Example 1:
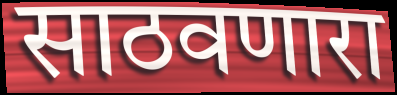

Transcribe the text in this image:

साठवणारा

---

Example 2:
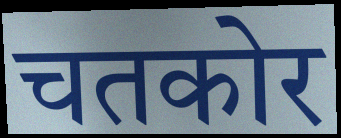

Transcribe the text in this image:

चतकोर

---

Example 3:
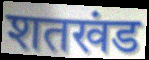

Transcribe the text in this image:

शतखंड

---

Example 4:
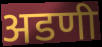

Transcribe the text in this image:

अडणी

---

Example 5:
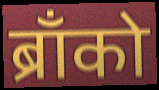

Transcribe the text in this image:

ब्राँको